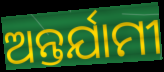
ଅନ୍ତର୍ଯାମୀ